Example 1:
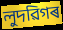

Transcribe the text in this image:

লুদৱিগৰ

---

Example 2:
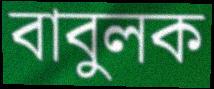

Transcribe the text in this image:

বাবুলক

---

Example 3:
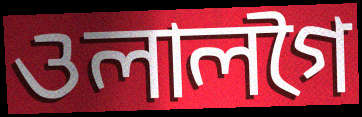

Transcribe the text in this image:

ওলালগৈ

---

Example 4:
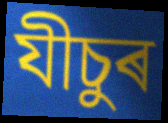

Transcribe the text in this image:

যীচুৰ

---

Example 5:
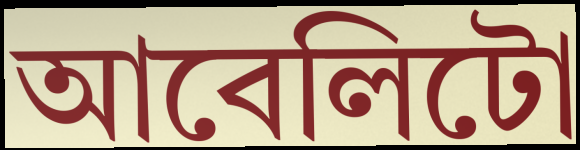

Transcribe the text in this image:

আবেলিটো